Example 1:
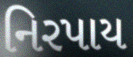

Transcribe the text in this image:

નિરપાય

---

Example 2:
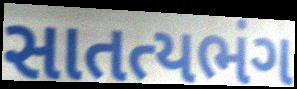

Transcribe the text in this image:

સાતત્યભંગ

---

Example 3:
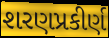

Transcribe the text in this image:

શરણપ્રકીર્ણ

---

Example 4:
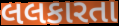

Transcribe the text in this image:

લલકારતા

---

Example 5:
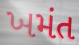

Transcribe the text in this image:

ખમંત